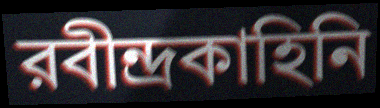
রবীন্দ্রকাহিনি